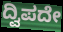
ದ್ವಿಪದೇ